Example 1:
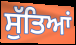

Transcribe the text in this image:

ਸੁੱਤਿਆਂ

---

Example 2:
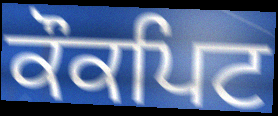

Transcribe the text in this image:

ਕੌਕਪਿਟ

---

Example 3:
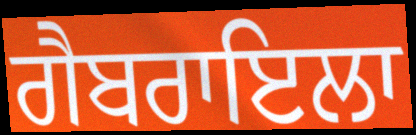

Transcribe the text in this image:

ਗੈਬਰਾਇਲਾ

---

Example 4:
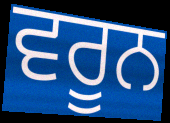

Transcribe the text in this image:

ਵਰੂਨ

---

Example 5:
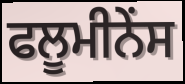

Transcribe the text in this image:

ਫਲੂਮੀਨੇਂਸ